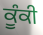
ਕੂੰਕੀ